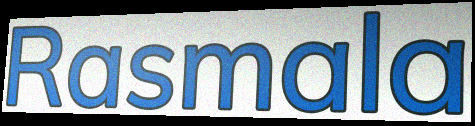
Rasmala